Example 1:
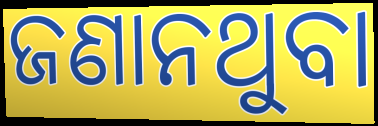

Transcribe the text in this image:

ଜଣାନଥୁବା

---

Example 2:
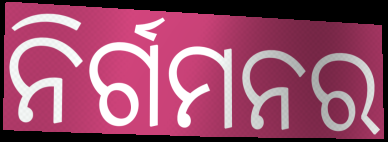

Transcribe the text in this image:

ନିର୍ଗମନର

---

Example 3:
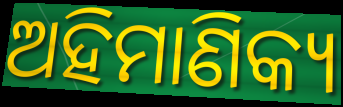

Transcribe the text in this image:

ଅହିମାଣିକ୍ୟ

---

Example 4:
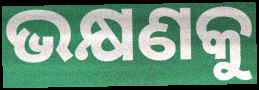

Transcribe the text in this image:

ଭକ୍ଷଣକୁ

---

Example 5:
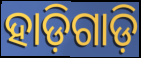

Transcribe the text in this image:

ହାଡ଼ିଗାଡ଼ି